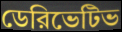
ডেরিভেটিভ